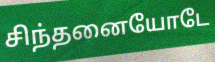
சிந்தனையோடே